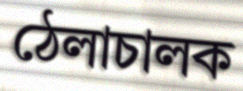
ঠেলাচালক